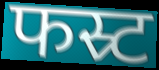
फस्र्ट